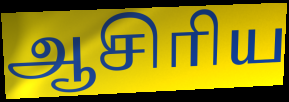
ஆசிரிய